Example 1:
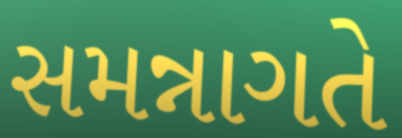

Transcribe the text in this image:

સમન્નાગતે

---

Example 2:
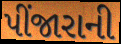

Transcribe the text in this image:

પીંજારાની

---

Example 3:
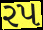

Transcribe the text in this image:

રપ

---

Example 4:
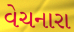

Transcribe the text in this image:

વેચનારા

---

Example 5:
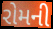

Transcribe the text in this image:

રોમની